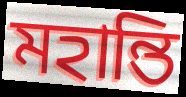
মহান্তি